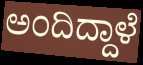
ಅಂದಿದ್ದಾಳೆ